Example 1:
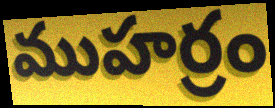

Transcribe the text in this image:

ముహర్రం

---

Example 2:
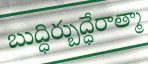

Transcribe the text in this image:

బుద్ధిర్బుద్ధేరాత్మా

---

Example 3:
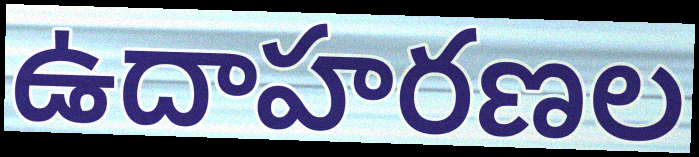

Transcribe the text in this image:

ఉదాహరణల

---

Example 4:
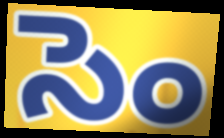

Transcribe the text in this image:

సెం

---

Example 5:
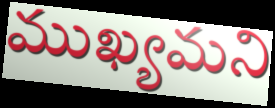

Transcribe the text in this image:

ముఖ్యమని